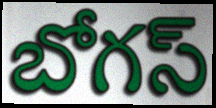
బోగస్